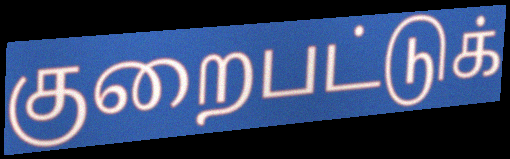
குறைபட்டுக்